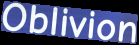
Oblivion